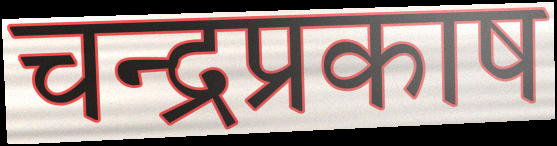
चन्द्रप्रकाष